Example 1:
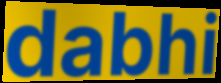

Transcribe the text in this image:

dabhi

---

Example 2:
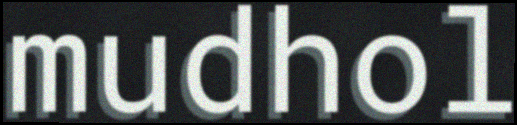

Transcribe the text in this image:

mudhol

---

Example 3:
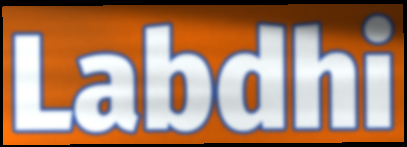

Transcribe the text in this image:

Labdhi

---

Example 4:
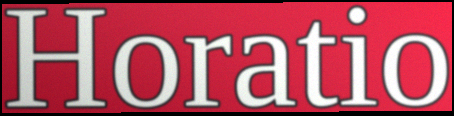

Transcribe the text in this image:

Horatio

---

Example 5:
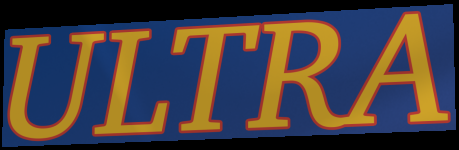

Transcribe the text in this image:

ULTRA